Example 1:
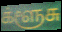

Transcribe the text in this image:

க்ளூசு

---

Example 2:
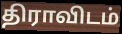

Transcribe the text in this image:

திராவிடம்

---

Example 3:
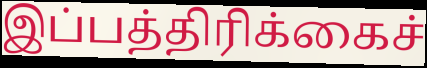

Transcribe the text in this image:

இப்பத்திரிக்கைச்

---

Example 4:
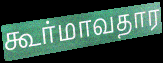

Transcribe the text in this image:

கூர்மாவதார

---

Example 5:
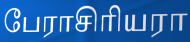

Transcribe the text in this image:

பேராசிரியரா